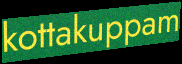
kottakuppam